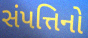
સંપત્તિનો